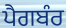
ਪੈਗਬੰਰ